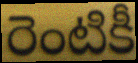
రెంటికీ